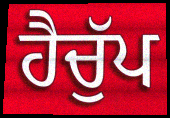
ਹੈਚੁੱਪ